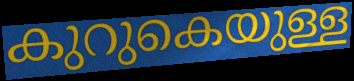
കുറുകെയുള്ള